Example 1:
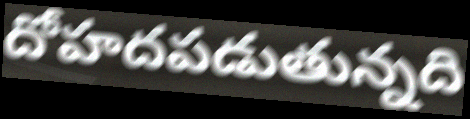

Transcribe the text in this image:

దోహదపడుతున్నది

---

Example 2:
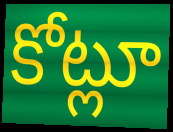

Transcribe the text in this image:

కోట్లూ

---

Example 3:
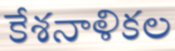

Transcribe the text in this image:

కేశనాళికల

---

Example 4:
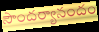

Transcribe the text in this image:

సౌందర్యానందం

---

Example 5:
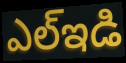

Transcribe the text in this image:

ఎల్ఇడి